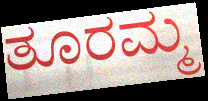
ತೂರಮ್ಮ